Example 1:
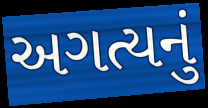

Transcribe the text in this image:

અગત્યનું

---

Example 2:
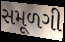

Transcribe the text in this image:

સમૂળગી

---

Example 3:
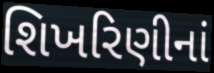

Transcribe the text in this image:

શિખરિણીનાં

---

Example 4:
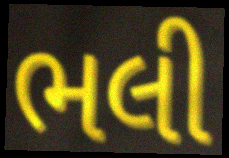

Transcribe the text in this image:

ભલી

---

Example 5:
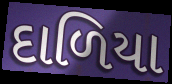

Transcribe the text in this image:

દાળિયા